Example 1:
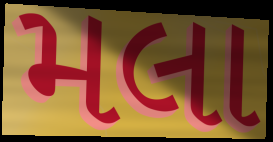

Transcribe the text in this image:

મલા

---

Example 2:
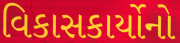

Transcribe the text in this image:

વિકાસકાર્યોનો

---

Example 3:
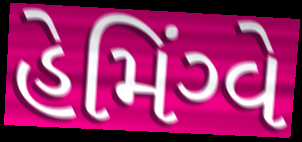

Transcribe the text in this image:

હેમિંગ્વે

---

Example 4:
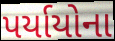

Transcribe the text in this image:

પર્યાયોના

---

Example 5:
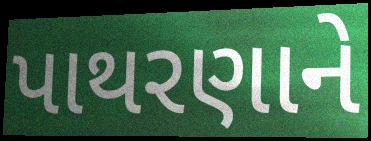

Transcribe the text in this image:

પાથરણાને